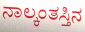
ನಾಲ್ಕಂತಸ್ತಿನ